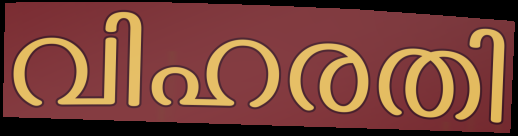
വിഹരതി